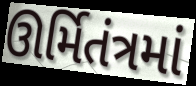
ઊર્મિતંત્રમાં